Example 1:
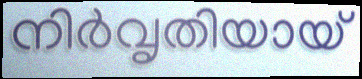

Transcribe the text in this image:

നിർവൃതിയായ്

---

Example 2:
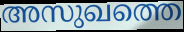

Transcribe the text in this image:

അസുഖത്തെ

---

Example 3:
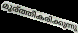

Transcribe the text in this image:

മൂര്ത്തീകരിക്കുന്നു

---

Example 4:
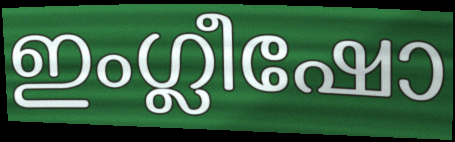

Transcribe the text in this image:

ഇംഗ്ലീഷോ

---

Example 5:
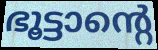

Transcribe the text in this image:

ഭൂട്ടാന്റെ